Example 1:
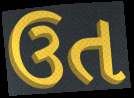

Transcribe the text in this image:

ઉત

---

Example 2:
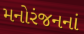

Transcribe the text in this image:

મનોરંજનનાં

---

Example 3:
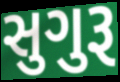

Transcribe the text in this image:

સુગુરૂ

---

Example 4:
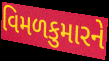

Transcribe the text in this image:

વિમળકુમારને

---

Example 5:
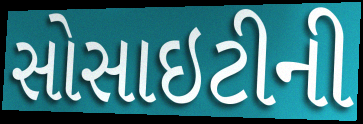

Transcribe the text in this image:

સોસાઇટીની